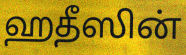
ஹதீஸின்